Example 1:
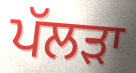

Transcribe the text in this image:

ਪੱਲੜਾ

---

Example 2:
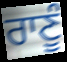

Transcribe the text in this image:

ਰਾਣੂੰ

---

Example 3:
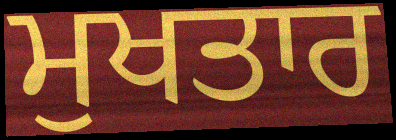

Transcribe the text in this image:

ਮੁਖਤਾਰ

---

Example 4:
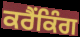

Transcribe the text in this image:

ਕਰੈਂਕਿੰਗ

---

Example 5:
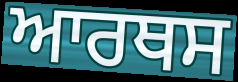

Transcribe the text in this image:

ਆਰਥਸ